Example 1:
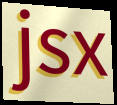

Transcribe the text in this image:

jsx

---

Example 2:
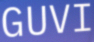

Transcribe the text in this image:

GUVI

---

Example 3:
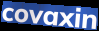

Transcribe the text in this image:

covaxin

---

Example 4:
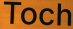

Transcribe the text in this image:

Toch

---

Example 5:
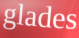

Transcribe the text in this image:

glades